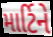
માર્ટિને